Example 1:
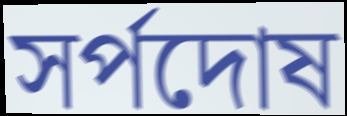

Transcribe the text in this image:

সর্পদোষ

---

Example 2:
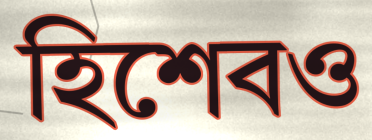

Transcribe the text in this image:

হিশেবও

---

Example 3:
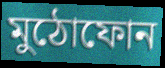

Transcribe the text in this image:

মুঠোফোন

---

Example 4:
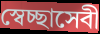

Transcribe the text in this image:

স্বেচ্ছাসেবী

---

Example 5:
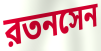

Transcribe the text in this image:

রতনসেন